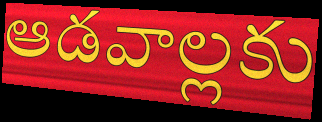
ఆడవాల్లకు